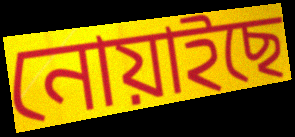
নোয়াইছে